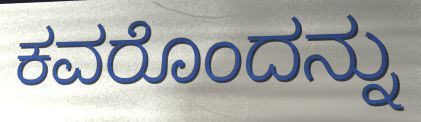
ಕವರೊಂದನ್ನು